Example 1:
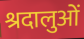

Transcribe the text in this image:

श्रदालुओं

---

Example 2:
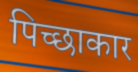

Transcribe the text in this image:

पिच्छाकार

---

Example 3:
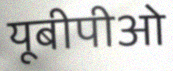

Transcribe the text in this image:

यूबीपीओ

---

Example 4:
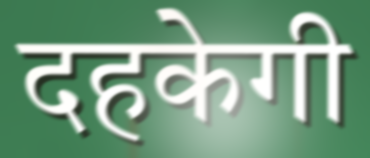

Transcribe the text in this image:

दहकेगी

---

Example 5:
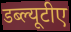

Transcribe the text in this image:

डब्ल्यूटीए